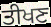
ਤੀਖਣ